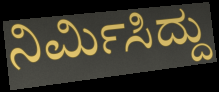
ನಿರ್ಮಿಸಿದ್ದು